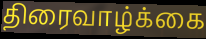
திரைவாழ்க்கை